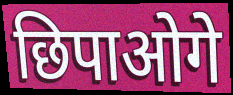
छिपाओगे